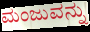
ಮಂಜುವನ್ನು